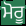
ਮੋਰੂ